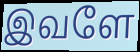
இவளே